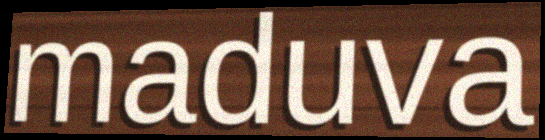
maduva